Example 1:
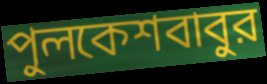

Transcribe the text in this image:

পুলকেশবাবুর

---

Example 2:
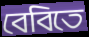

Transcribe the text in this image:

বেবিতে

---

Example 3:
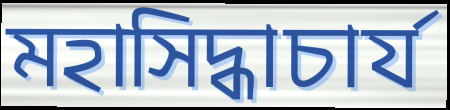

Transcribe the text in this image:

মহাসিদ্ধাচার্য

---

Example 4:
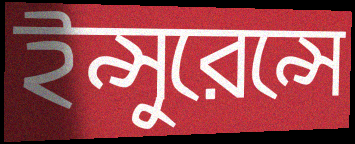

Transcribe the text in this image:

ইন্সুরেন্সে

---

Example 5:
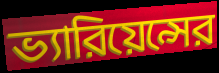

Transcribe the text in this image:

ভ্যারিয়েন্সের